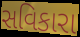
સવિકારા